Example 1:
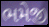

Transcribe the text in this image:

ભમેજી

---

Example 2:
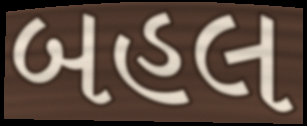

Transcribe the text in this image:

બહલ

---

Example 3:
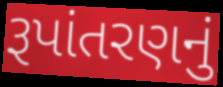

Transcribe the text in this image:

રૂપાંતરણનું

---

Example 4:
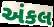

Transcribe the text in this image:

અંકલ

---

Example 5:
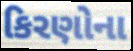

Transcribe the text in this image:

કિરણોના